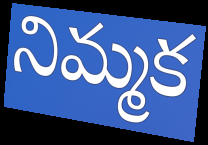
నిమ్మక